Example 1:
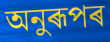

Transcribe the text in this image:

অনুৰূপৰ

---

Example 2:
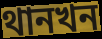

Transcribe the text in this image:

থানখন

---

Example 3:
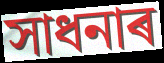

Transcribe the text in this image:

সাধনাৰ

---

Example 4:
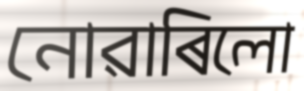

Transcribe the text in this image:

নোৱাৰিলো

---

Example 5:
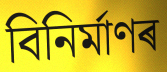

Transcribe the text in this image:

বিনিৰ্মাণৰ